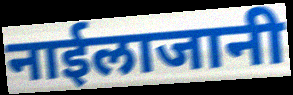
नाईलाजानी